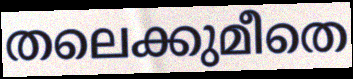
തലെക്കുമീതെ